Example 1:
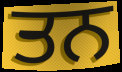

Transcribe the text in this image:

ਤਨ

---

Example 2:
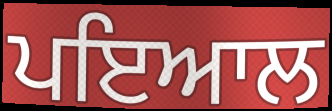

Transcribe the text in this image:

ਪਇਆਲ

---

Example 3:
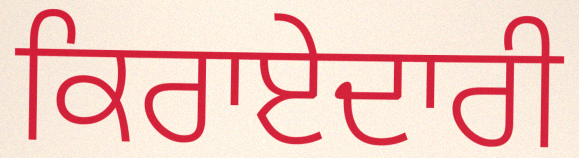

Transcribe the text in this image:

ਕਿਰਾਏਦਾਰੀ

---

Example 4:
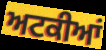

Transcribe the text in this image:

ਅਟਕੀਆਂ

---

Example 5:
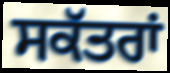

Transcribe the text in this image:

ਸਕੱਤਰਾਂ